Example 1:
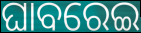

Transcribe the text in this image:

ଘାବରେଇ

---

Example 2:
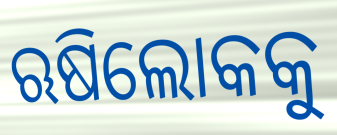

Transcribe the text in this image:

ଋଷିଲୋକକୁ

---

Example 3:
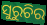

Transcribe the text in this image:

ସୁରୁଚିର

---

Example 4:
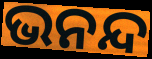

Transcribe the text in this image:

ଭନନ୍ଦ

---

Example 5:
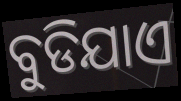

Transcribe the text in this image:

ବୁଡିଯାଏ